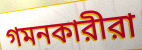
গমনকারীরা